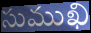
సుముఖి